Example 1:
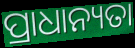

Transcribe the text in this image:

ପ୍ରାଧାନ୍ୟତା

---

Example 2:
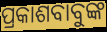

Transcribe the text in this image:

ପ୍ରକାଶବାବୁଙ୍କ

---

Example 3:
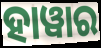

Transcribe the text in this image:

ହାୱାର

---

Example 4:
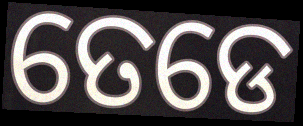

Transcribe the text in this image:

ତେଡେ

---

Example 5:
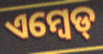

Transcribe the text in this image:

ଏମ୍ବେଡ୍